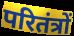
परितंत्रों